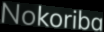
Nokoriba